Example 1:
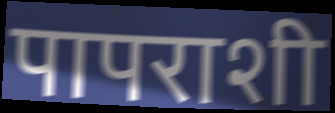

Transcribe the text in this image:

पापराशी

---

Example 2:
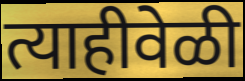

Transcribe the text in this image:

त्याहीवेळी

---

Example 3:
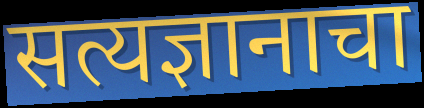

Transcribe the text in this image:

सत्यज्ञानाचा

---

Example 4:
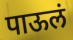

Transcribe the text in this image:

पाऊलं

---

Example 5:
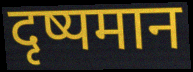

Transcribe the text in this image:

दृष्यमान